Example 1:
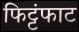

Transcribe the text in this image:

फिट्टंफाट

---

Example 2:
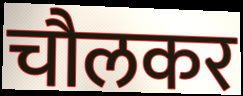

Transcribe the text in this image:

चौलकर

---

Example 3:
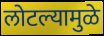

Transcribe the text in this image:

लोटल्यामुळे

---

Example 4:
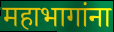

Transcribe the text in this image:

महाभागांना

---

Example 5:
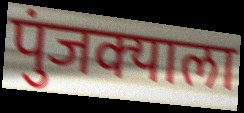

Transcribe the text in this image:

पुंजक्याला